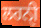
ਲਹਨੑੀ